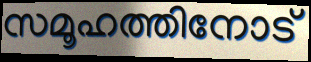
സമൂഹത്തിനോട്